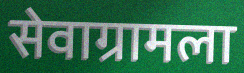
सेवाग्रामला